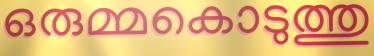
ഒരുമ്മകൊടുത്തു